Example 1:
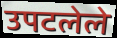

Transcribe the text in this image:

उपटलेले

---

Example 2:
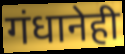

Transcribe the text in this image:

गंधानेही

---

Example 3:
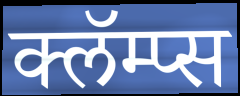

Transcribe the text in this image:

क्लॅम्प्स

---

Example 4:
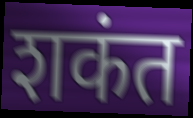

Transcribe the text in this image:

शकंत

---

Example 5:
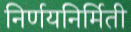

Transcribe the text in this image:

निर्णयनिर्मिती